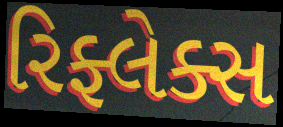
રિફ્લેક્સ